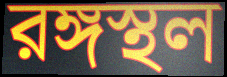
রঙ্গস্থল